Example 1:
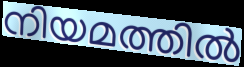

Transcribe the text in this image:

നിയമത്തിൽ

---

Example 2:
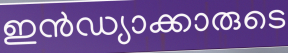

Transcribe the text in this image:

ഇൻഡ്യാക്കാരുടെ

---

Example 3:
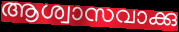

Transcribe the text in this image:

ആശ്വാസവാക്കു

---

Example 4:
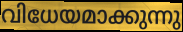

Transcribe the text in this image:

വിധേയമാക്കുന്നു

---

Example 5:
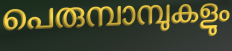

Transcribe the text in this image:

പെരുമ്പാമ്പുകളും